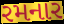
રમનાર